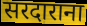
सरदाराना